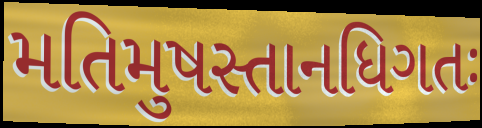
મતિમુષસ્તાનધિગતઃ